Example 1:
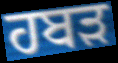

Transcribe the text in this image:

ਹਬੜ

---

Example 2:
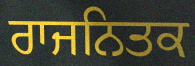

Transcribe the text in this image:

ਰਾਜਨਿਤਕ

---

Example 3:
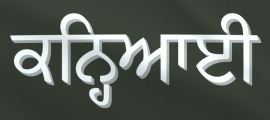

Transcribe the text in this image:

ਕਨ੍ਹਿਆਈ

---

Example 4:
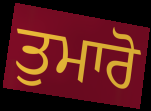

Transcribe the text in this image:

ਤੁਮਾਰੋ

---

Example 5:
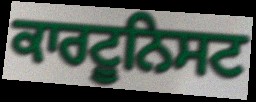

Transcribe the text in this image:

ਕਾਰਟੂਨਿਸਟ